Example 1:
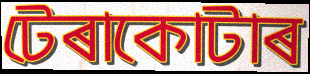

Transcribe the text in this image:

টেৰাকোটাৰ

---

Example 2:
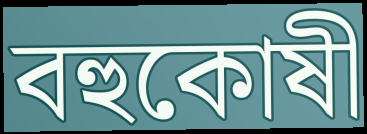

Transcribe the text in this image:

বহুকোষী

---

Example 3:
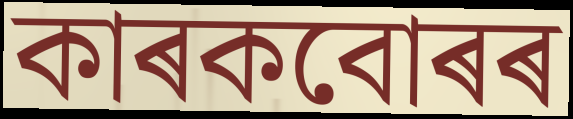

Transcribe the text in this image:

কাৰকবোৰৰ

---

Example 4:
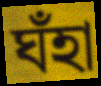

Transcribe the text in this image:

ঘঁহা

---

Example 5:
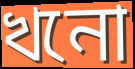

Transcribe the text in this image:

খনো